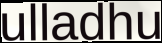
ulladhu